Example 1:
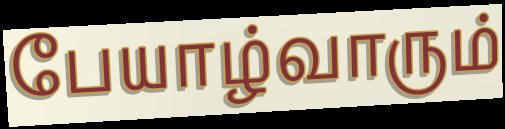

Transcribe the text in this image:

பேயாழ்வாரும்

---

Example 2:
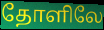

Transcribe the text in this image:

தோளிலே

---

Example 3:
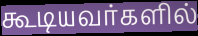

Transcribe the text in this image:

கூடியவர்களில்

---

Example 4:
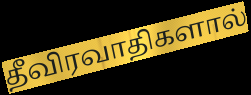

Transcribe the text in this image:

தீவிரவாதிகளால்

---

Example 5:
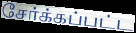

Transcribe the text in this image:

சேர்க்கப்பட்ட